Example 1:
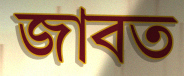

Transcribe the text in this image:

জাবত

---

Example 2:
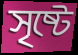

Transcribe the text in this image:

সৃষ্টে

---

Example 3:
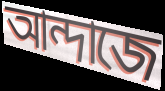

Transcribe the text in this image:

আন্দাজে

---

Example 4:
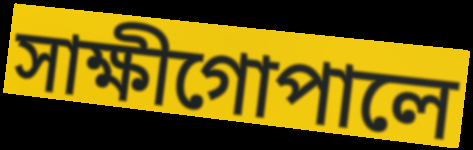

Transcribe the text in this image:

সাক্ষীগোপালে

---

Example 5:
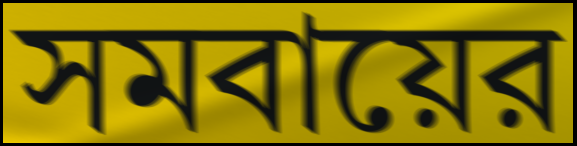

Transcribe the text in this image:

সমবায়ের